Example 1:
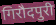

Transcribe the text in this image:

गिरौदपुरी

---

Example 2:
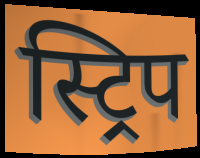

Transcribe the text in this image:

स्ट्रिप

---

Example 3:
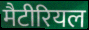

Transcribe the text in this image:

मैटीरियल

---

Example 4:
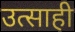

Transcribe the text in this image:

उत्साही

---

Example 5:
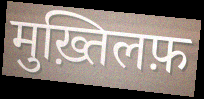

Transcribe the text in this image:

मुख़्तिलफ़